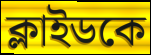
ক্লাইডকে